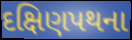
દક્ષિણપથના